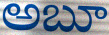
అబూ